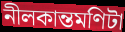
নীলকান্তমণিটা